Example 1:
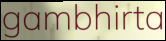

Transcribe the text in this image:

gambhirta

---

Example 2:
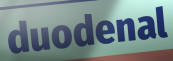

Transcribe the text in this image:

duodenal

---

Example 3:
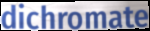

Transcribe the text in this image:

dichromate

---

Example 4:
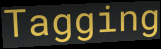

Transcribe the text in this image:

Tagging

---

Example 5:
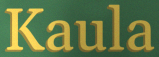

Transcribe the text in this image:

Kaula